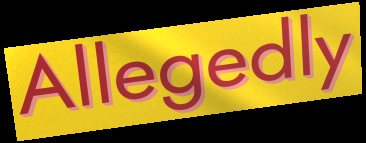
Allegedly